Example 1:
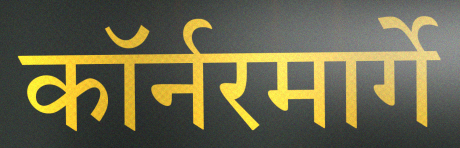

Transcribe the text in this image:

कॉर्नरमार्गे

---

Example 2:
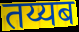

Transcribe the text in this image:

तय्यब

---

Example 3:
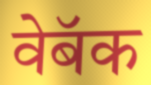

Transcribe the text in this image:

वेबॅक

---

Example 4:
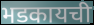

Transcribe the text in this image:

भडकायची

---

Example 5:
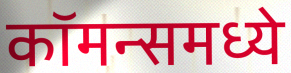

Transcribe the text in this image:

कॉमन्समध्ये